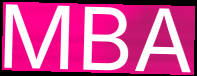
MBA